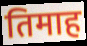
तिमाह